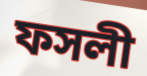
ফসলী